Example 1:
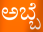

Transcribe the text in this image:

ಅಬ್ಬೆ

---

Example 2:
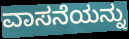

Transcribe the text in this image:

ವಾಸನೆಯನ್ನು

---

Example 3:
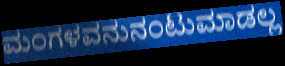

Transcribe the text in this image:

ಮಂಗಳವನುನಂಟುಮಾಡಲ್ಲ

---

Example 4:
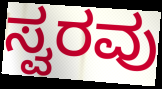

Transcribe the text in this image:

ಸ್ವರವು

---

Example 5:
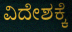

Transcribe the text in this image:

ವಿದೇಶಕ್ಕೆ